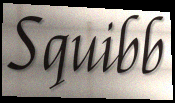
Squibb